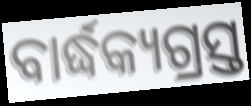
ବାର୍ଦ୍ଧକ୍ୟଗ୍ରସ୍ତ